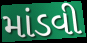
માંડવી